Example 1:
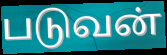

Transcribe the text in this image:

படுவன்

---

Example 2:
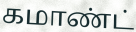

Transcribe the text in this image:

கமாண்ட்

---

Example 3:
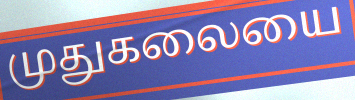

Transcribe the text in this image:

முதுகலையை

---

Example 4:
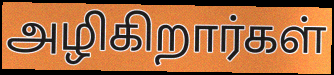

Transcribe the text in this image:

அழிகிறார்கள்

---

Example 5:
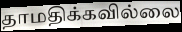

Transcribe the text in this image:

தாமதிக்கவில்லை